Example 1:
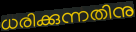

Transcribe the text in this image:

ധരിക്കുന്നതിനു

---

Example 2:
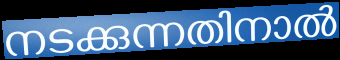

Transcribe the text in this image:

നടക്കുന്നതിനാൽ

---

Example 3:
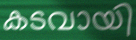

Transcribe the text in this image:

കടവായി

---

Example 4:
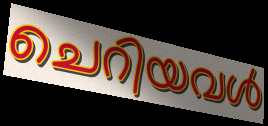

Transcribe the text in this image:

ചെറിയവൾ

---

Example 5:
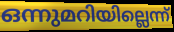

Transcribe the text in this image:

ഒന്നുമറിയില്ലെന്ന്